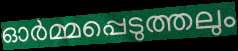
ഓർമ്മപ്പെടുത്തലും